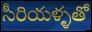
సీరియళ్ళతో